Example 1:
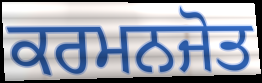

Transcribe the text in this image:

ਕਰਮਨਜੋਤ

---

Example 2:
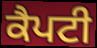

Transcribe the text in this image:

ਕੈਪਟੀ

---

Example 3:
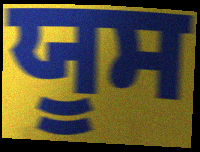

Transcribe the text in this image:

ਯੂਸ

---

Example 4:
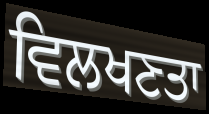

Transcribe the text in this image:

ਵਿਲਖਣਤਾ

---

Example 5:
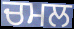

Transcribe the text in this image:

ਚਮਲ